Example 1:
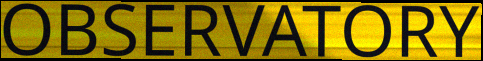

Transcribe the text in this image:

OBSERVATORY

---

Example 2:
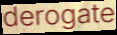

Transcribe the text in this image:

derogate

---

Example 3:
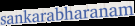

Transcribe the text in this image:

sankarabharanam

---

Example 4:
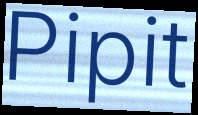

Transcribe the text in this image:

Pipit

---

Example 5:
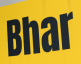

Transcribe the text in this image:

Bhar